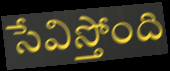
సేవిస్తోంది